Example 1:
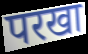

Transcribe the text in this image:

परखा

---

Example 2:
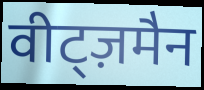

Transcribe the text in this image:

वीट्ज़मैन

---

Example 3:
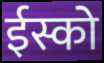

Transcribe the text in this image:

ईस्को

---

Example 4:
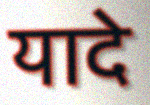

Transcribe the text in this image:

यादे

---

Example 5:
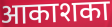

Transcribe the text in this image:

आकाशका